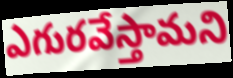
ఎగురవేస్తామని